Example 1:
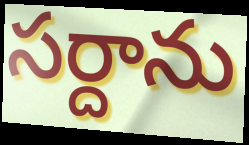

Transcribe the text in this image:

సర్దాను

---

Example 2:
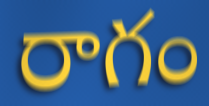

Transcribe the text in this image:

రాగం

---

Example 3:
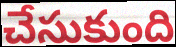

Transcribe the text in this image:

చేసుకుంది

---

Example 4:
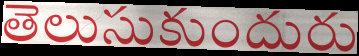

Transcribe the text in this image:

తెలుసుకుందురు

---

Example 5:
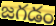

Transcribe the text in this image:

జగడం